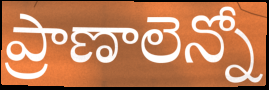
ప్రాణాలెన్నో